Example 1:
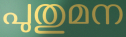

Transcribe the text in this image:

പുതുമന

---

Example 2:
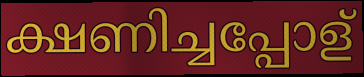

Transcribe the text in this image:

ക്ഷണിച്ചപ്പോള്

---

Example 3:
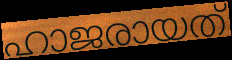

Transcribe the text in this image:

ഹാജരായത്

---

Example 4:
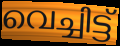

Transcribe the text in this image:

വെച്ചിട്ട്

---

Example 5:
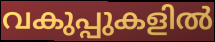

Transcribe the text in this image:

വകുപ്പുകളിൽ